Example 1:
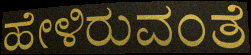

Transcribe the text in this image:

ಹೇಳಿರುವಂತೆ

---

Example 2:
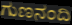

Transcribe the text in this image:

ಗುಣನಂದಿ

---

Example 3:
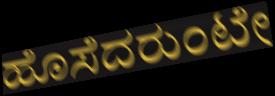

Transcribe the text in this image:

ಹೊಸೆದರುಂಟೇ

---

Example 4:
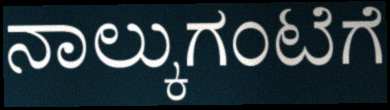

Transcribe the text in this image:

ನಾಲ್ಕುಗಂಟೆಗೆ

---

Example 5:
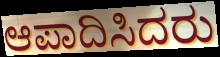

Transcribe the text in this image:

ಆಪಾದಿಸಿದರು